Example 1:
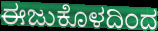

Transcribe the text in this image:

ಈಜುಕೊಳದಿಂದ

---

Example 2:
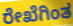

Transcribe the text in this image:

ರೇಖೆಗಿಂತ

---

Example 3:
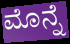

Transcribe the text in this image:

ಮೊನ್ನೆ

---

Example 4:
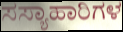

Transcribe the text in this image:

ಸಸ್ಯಾಹಾರಿಗಳ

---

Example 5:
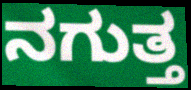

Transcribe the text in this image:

ನಗುತ್ತ